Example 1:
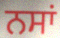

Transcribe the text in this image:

ਨਸਾਂ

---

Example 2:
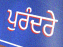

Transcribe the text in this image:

ਪੁਰੰਦਰੇ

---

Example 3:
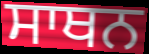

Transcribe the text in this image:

ਸਾਥਨ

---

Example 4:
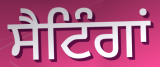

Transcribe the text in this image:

ਸੈਟਿੰਗਾਂ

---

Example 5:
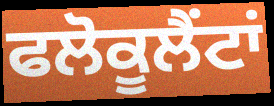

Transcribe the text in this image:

ਫਲੋਕੂਲੈਂਟਾਂ